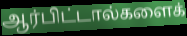
ஆர்பிட்டால்களைக்